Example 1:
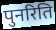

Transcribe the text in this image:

पुनरिति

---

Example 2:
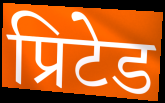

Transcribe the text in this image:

प्रिटेड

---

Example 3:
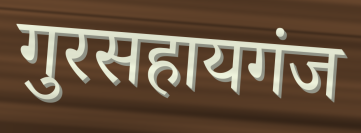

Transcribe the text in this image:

गुरसहायगंज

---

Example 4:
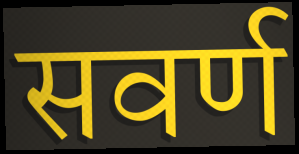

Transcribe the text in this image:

सवर्ण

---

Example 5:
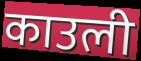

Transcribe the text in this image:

काउली